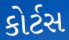
કોર્ટસ